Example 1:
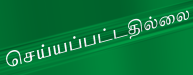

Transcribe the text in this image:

செய்யப்பட்டதில்லை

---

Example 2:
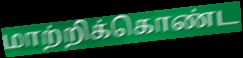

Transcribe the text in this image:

மாற்றிக்கொண்ட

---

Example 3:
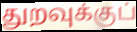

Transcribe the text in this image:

துறவுக்குப்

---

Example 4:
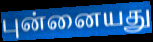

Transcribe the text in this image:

புன்னையது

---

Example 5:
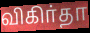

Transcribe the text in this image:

விகிர்தா